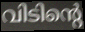
വിടിന്റെ